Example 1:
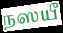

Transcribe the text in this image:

நஸயீ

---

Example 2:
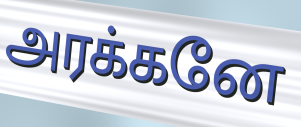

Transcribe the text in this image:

அரக்கனே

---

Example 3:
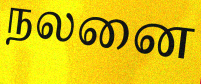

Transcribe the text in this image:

நலனை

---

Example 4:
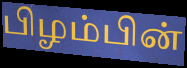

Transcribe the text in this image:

பிழம்பின்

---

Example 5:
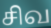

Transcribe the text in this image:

சிவ